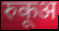
रुकूअ